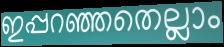
ഇപ്പറഞ്ഞതെല്ലാം